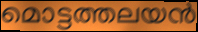
മൊട്ടത്തലയൻ